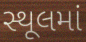
સ્થૂલમાં